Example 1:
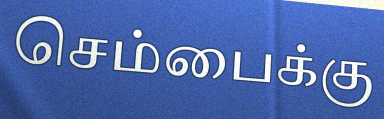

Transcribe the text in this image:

செம்பைக்கு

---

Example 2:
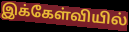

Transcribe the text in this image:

இக்கேள்வியில்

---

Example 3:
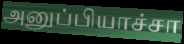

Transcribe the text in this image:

அனுப்பியாச்சா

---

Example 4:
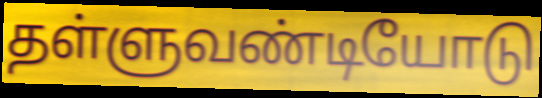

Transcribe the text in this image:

தள்ளுவண்டியோடு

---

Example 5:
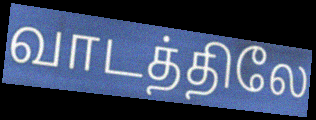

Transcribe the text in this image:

வாடத்திலே